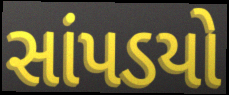
સાંપડયો